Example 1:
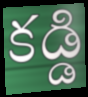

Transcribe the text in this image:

కడ్డి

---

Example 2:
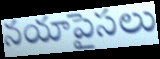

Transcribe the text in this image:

నయాపైసలు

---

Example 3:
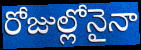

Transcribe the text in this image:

రోజుల్లోనైనా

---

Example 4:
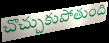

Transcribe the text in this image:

చొచ్చుకుపోతుంది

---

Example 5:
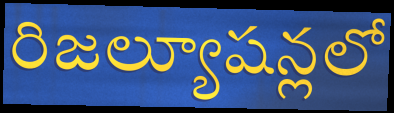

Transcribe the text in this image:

రిజల్యూషన్లలో